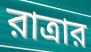
রাত্রার